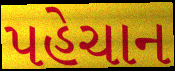
પહેચાન